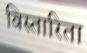
विस्तारिता